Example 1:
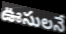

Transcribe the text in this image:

ఊసులనే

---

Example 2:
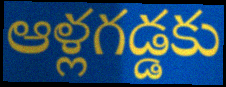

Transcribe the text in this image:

ఆళ్లగడ్డకు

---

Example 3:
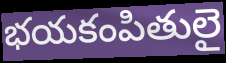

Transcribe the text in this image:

భయకంపితులై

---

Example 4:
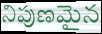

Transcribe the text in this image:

నిపుణమైన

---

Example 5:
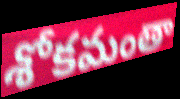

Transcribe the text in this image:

శోకమంతా